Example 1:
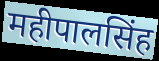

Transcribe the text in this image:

महीपालसिंह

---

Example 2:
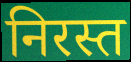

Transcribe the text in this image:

निरस्त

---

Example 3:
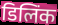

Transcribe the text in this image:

डिलिंक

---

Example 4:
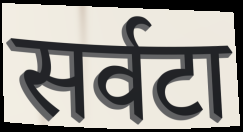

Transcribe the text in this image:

सर्वटा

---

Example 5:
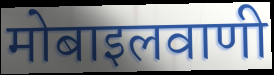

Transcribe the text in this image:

मोबाइलवाणी